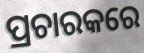
ପ୍ରଚାରକରେ